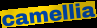
camellia